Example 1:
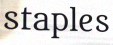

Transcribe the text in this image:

staples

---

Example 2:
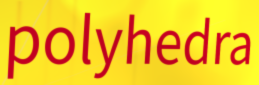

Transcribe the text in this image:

polyhedra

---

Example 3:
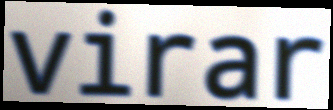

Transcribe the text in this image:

virar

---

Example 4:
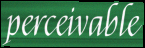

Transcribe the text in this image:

perceivable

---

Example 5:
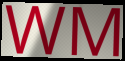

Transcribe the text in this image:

WM